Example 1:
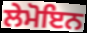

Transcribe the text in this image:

ਲੇਮੋਇਨ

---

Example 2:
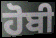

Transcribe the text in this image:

ਹੋਬੀ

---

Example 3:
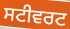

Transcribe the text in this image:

ਸਟੀਵਰਟ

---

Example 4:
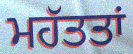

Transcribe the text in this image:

ਮਹੱਤਤਾਂ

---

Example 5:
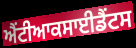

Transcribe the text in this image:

ਐਂਟੀਆਕਸਾਈਡੈਂਟਸ